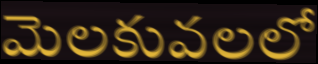
మెలకువలలో